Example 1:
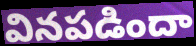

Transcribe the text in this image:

వినపడిందా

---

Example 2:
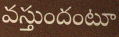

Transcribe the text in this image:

వస్తుందంటూ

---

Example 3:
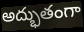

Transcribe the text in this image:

అద్భుతంగా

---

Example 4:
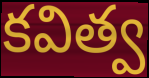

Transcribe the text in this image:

కవిత్వ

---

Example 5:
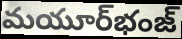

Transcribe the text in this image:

మయూర్‌భంజ్